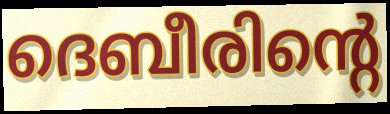
ദെബീരിന്റെ